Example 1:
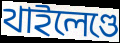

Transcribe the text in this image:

থাইলেণ্ডে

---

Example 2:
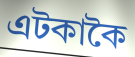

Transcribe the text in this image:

এটকাকৈ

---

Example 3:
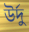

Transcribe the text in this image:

উৰ্দু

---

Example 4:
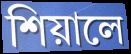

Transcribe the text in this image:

শিয়ালে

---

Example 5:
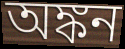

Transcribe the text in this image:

অঙ্কন